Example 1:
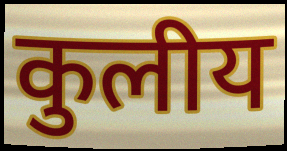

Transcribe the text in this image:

कुलीय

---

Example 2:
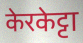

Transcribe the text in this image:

केरकेट्टा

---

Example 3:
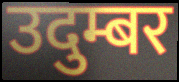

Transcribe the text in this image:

उदुम्बर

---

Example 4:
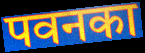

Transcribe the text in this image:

पवनका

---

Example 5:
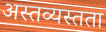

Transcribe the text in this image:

अस्तव्यस्तता